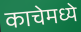
काचेमध्ये